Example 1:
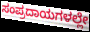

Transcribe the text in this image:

ಸಂಪ್ರದಾಯಗಳಲ್ಲೇ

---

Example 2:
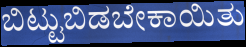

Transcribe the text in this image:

ಬಿಟ್ಟುಬಿಡಬೇಕಾಯಿತು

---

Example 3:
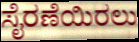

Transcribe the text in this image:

ಸೈರಣೆಯಿರಲು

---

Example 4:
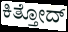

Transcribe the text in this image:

ಕಿತ್ತೋದ್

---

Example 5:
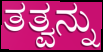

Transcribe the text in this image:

ತತ್ವನ್ನು